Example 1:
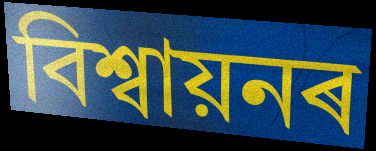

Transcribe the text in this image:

বিশ্ৱায়নৰ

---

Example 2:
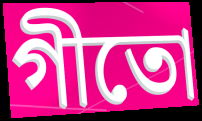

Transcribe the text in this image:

গীতো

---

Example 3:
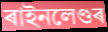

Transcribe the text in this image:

ৰাইনলেণ্ডৰ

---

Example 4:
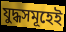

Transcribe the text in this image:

যুদ্ধসমূহেই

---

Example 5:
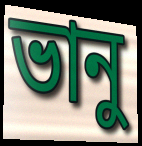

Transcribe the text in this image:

ভানু